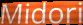
Midori